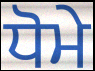
ਧੋਮੇ